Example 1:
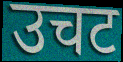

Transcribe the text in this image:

उचट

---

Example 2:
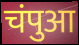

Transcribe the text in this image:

चंपुआ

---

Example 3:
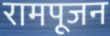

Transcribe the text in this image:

रामपूजन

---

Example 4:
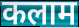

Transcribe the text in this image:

कलाम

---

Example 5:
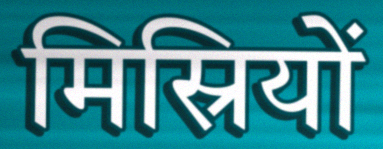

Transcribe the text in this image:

मिस्रियों